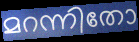
മറന്നിതോ